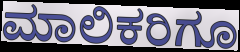
ಮಾಲಿಕರಿಗೂ